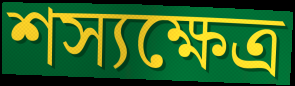
শস্যক্ষেত্র